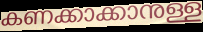
കണക്കാക്കാനുള്ള